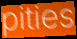
pities